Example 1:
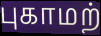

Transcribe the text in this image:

புகாமற்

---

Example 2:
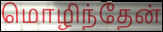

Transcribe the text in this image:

மொழிந்தேன்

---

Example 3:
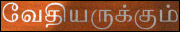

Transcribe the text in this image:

வேதியருக்கும்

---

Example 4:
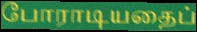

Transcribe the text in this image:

போராடியதைப்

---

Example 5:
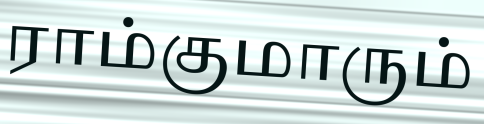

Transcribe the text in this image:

ராம்குமாரும்